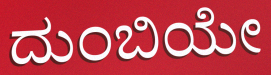
ದುಂಬಿಯೇ